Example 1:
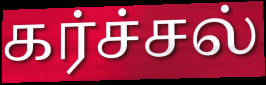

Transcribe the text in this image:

கர்ச்சல்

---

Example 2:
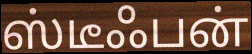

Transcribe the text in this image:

ஸ்டீஃபன்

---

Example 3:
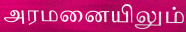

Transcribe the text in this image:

அரமனையிலும்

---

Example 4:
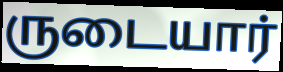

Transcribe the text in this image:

ருடையார்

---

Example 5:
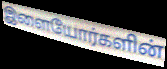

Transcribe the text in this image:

இளையோர்களின்